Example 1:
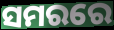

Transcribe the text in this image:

ସମରରେ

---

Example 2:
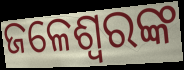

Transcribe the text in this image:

ଜଳେଶ୍ଵରଙ୍କ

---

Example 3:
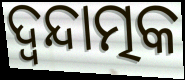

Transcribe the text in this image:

ଦ୍ଵନ୍ଦାତ୍ମକ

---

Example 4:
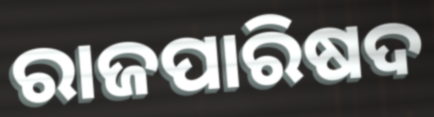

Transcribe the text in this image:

ରାଜପାରିଷଦ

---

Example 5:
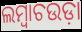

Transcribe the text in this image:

ଲମ୍ୱାଚଉଡ଼ା